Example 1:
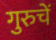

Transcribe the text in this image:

गुरुचें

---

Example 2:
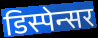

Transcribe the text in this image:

डिस्पेन्सर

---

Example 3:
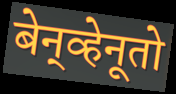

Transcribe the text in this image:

बेन्‌व्हेनूतो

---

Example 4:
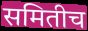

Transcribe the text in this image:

समितीच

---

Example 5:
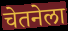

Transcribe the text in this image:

चेतनेला